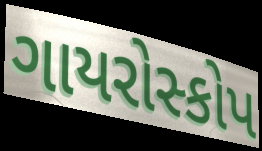
ગાયરોસ્કોપ